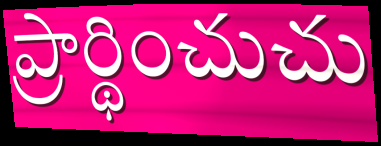
ప్రార్థించుచు